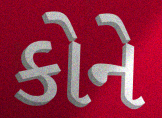
કોને